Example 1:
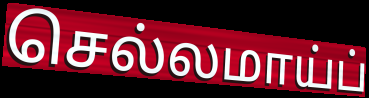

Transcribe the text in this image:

செல்லமாய்ப்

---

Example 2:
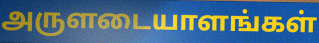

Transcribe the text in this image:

அருளடையாளங்கள்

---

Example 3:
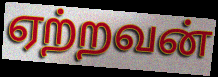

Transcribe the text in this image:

ஏற்றவன்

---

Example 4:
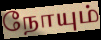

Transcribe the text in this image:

நோயும்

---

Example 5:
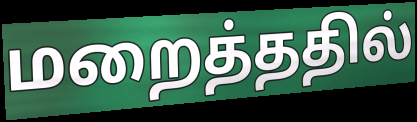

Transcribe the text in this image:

மறைத்ததில்